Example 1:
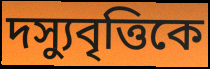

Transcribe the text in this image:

দস্যুবৃত্তিকে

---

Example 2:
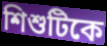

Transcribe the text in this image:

শিশুটিকে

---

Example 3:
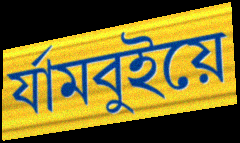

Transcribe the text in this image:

র্যামবুইয়ে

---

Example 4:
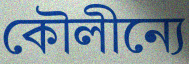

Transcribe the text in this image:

কৌলীন্যে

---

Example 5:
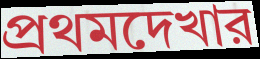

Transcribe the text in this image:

প্রথমদেখার